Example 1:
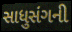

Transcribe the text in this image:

સાધુસંગની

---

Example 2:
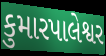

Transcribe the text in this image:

કુમારપાલેશ્વર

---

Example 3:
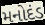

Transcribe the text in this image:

મનોદંડ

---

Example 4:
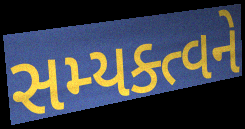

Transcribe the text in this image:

સમ્યક્ત્વને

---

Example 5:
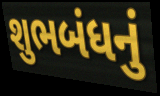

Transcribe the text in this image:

શુભબંધનું